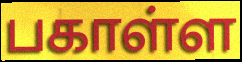
பகாள்ள